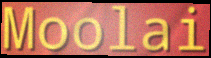
Moolai